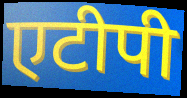
एटीपी